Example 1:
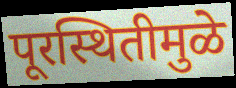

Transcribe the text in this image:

पूरस्थितीमुळे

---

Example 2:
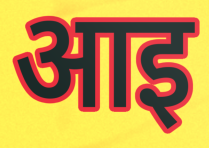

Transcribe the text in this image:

आइ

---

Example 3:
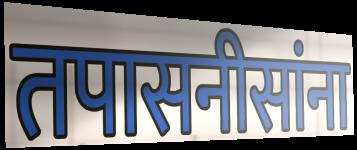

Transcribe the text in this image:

तपासनीसांना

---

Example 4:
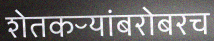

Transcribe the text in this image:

शेतकऱ्यांबरोबरच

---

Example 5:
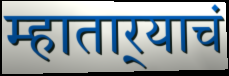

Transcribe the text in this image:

म्हातार्याचं